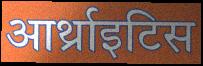
आर्थ्राइटिस